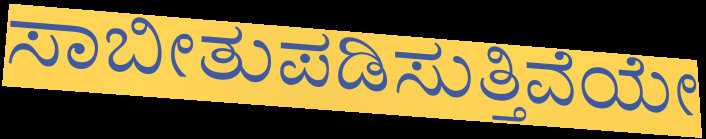
ಸಾಬೀತುಪಡಿಸುತ್ತಿವೆಯೇ